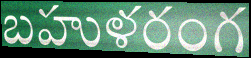
బహుళరంగ